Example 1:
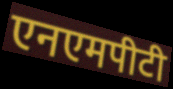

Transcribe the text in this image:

एनएमपीटी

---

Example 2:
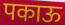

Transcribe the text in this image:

पकाऊ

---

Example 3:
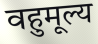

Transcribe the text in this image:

वहुमूल्य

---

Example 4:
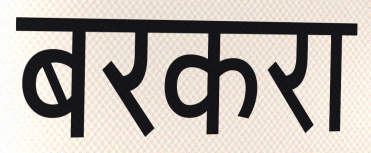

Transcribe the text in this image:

बरकरा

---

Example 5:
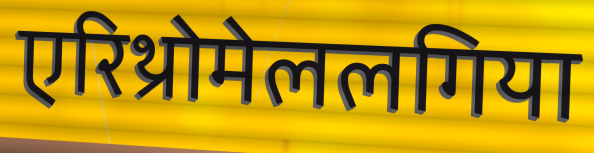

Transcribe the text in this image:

एरिथ्रोमेललगिया